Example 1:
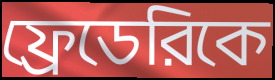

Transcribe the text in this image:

ফ্রেডেরিকে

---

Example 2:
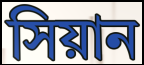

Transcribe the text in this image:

সিয়ান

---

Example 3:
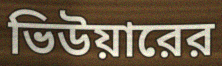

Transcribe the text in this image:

ভিউয়ারের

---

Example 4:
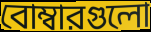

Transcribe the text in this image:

বোম্বারগুলো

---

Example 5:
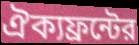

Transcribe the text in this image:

ঐক্যফ্রন্টের